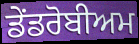
ਡੇਂਡਰੋਬੀਅਮ